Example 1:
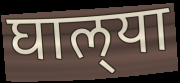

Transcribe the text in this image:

घाल्या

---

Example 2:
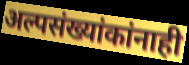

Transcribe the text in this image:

अल्पसंख्यांकांनाही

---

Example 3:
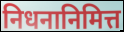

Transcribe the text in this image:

निधनानिमित्त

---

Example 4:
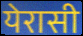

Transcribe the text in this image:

येरासी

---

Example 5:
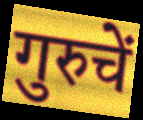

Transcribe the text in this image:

गुरुचें